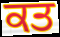
ਕਤ